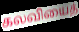
கலவியைத்